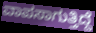
ವಾಪಸಾಗುತ್ತಿದ್ದೆ